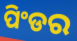
ପିଂଡର